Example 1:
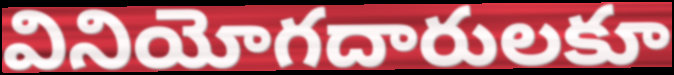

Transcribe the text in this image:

వినియోగదారులకూ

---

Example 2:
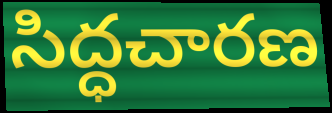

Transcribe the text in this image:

సిద్ధచారణ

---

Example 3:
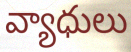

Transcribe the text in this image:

వ్యాధులు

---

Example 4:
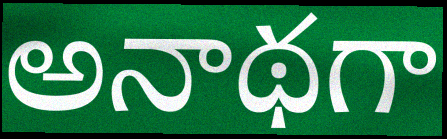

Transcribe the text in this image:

అనాథగా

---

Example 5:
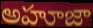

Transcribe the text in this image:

అహూజా